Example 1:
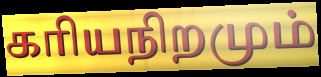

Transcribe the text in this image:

கரியநிறமும்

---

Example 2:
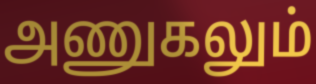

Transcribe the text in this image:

அணுகலும்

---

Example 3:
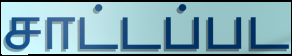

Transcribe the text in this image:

சாட்டப்பட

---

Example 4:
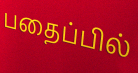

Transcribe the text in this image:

பதைப்பில்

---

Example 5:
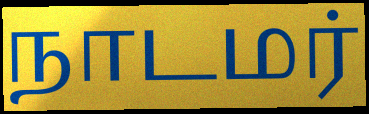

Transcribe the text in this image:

நாடமர்